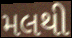
મલથી